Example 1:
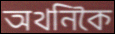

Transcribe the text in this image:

অথনিকৈ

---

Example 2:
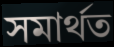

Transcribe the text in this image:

সমাৰ্থত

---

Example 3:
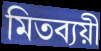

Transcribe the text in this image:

মিতব্যয়ী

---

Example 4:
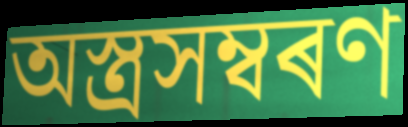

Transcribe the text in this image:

অস্ত্ৰসম্বৰণ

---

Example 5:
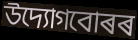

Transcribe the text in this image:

উদ্যোগবোৰৰ